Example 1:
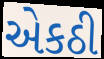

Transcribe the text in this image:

એકઠી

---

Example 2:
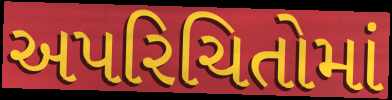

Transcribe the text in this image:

અપરિચિતોમાં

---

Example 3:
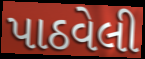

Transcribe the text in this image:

પાઠવેલી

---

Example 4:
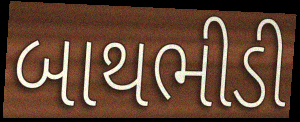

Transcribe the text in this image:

બાથભીડી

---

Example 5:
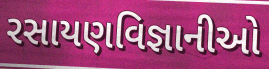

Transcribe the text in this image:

રસાયણવિજ્ઞાનીઓ